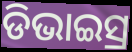
ଡିଭାଇସ୍ର